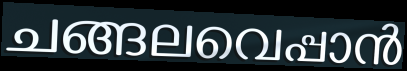
ചങ്ങലവെപ്പാൻ